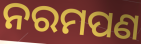
ନରମପଣ